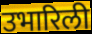
उभारिली